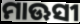
ମାଊସୀ